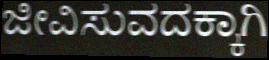
ಜೀವಿಸುವದಕ್ಕಾಗಿ